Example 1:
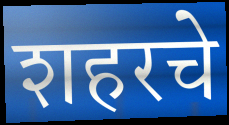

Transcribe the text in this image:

शहरचे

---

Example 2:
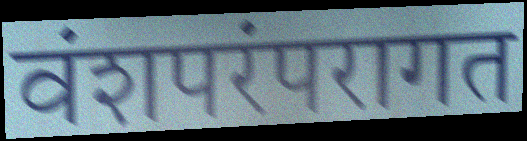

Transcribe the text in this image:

वंशपरंपरागत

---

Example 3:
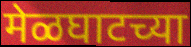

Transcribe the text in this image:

मेळघाटच्या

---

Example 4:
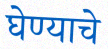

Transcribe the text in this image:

घेण्याचे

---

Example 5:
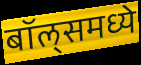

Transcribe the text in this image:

बॉल्समध्ये